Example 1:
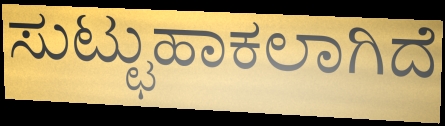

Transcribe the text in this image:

ಸುಟ್ಟುಹಾಕಲಾಗಿದೆ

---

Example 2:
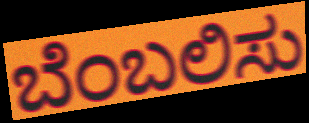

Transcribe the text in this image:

ಬೆಂಬಲಿಸು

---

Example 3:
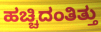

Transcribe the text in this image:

ಹಚ್ಚಿದಂತಿತ್ತು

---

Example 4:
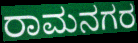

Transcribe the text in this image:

ರಾಮನಗರ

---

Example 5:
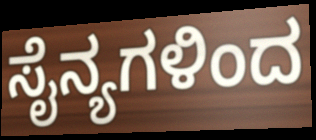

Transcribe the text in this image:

ಸೈನ್ಯಗಳಿಂದ